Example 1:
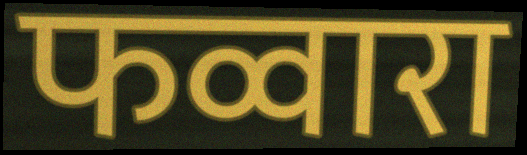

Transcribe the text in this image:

फव्वारा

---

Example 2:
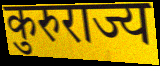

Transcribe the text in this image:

कुरुराज्य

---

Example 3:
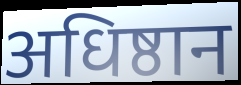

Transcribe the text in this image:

अधिष्ठान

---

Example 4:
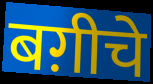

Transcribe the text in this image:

बग़ीचे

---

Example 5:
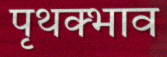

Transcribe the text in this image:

पृथक्भाव